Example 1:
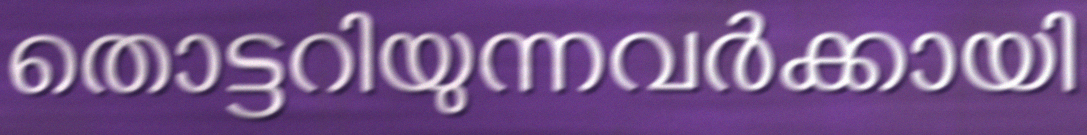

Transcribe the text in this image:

തൊട്ടറിയുന്നവർക്കായി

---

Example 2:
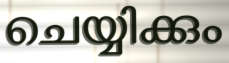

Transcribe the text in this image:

ചെയ്യിക്കും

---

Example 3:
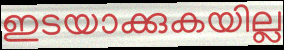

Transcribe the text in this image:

ഇടയാക്കുകയില്ല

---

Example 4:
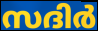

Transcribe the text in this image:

സദിർ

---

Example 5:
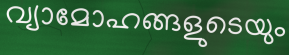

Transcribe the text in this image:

വ്യാമോഹങ്ങളുടെയും